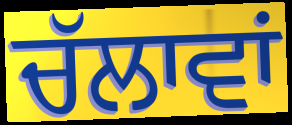
ਚੱਲਾਵਾਂ